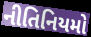
નીતિનિયમો